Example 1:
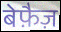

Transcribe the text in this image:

बेफ़ैज़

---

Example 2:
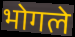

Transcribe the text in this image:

भोगले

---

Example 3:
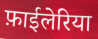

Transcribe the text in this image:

फ़ाईलेरिया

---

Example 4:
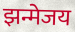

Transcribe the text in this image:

झन्मेजय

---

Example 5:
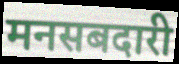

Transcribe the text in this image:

मनसबदारी